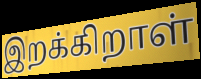
இறக்கிறாள்